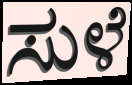
ಸುಳೆ